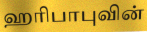
ஹரிபாபுவின்